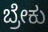
ಬ್ರೇಕು